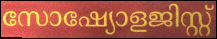
സോഷ്യോളജിസ്റ്റ്